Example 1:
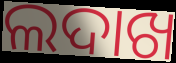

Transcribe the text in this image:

ଲଦାଖ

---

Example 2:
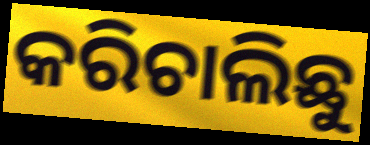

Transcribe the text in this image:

କରିଚାଲିଛୁ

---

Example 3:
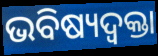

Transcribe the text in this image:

ଭବିଷ୍ୟଦ୍ବକ୍ତା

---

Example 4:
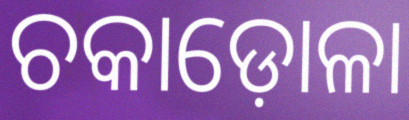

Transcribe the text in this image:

ଚକାଡ଼ୋଳା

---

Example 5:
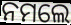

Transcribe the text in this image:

ନମଲେ